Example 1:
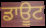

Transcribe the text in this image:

ਡਾਊਟ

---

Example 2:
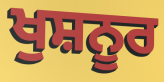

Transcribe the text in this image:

ਖੁਸ਼ਨੂਰ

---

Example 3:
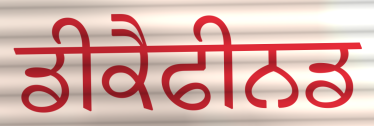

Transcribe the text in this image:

ਡੀਕੈਫੀਨਡ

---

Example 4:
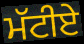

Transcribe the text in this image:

ਮੱਟੀਏ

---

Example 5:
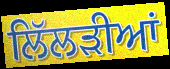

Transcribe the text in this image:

ਲਿੱਲੜੀਆਂ